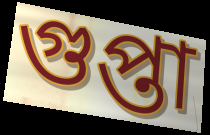
গুপ্তা